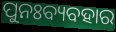
ପୁନଃବ୍ୟବହାର